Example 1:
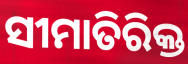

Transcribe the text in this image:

ସୀମାତିରିକ୍ତ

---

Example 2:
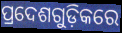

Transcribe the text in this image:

ପ୍ରଦେଶଗୁଡ଼ିକରେ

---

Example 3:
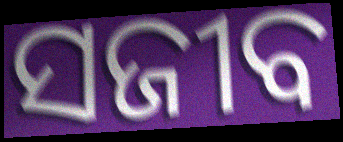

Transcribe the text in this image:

ସଜୀବ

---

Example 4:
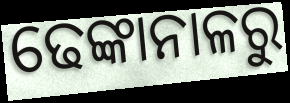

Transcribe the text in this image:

ଢେଙ୍କାନାଳରୁ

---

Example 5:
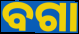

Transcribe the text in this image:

ବଗା